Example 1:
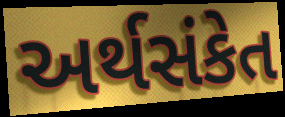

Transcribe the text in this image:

અર્થસંકેત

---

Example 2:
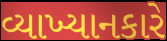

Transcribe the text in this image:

વ્યાખ્યાનકારે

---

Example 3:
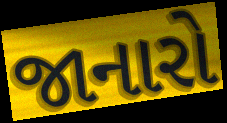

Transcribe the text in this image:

જાનારો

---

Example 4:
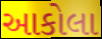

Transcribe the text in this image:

આકોલા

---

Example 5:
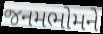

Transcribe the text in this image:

જનમભોમને